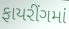
ફાયરીંગમાં